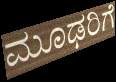
ಮೂಢರಿಗೆ